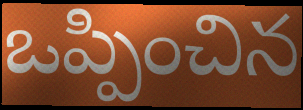
ఒప్పించిన